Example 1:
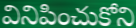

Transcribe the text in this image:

వినిపించుకోని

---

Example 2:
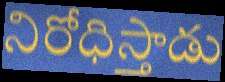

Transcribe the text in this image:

నిరోధిస్తాడు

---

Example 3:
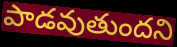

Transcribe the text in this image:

పాడవుతుందని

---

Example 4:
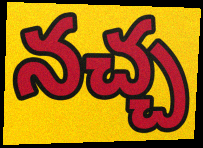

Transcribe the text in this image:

నచ్చ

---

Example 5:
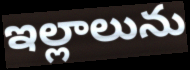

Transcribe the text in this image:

ఇల్లాలును